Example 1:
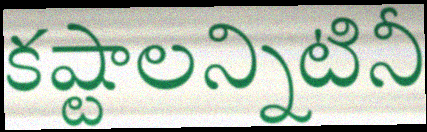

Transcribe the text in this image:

కష్టాలన్నిటినీ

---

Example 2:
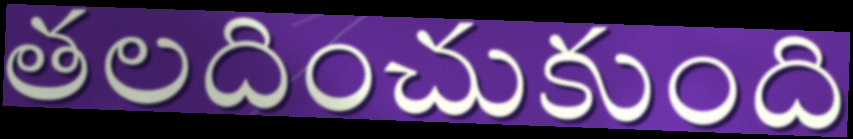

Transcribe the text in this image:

తలదించుకుంది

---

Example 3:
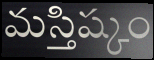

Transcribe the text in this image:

మస్తిష్కం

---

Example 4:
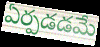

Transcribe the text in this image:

ఏర్పడడమే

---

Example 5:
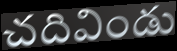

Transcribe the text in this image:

చదివిండు